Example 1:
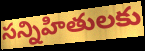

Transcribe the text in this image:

సన్నిహితులకు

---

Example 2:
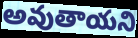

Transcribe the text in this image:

అవుతాయని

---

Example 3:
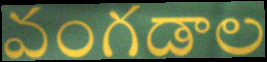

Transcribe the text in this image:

వంగడాల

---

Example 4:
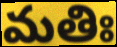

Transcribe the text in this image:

మతిః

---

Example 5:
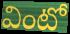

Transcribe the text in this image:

వింటో